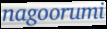
nagoorumi